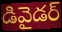
డివైడర్